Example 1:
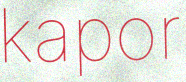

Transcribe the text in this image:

kapor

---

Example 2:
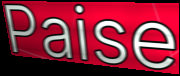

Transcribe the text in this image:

Paise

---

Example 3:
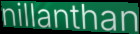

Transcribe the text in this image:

nillanthan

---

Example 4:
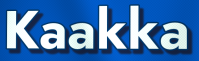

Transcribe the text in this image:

Kaakka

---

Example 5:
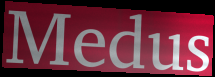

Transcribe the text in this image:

Medus